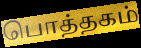
பொத்தகம்